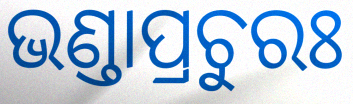
ଭଣ୍ଡାପ୍ରଚୁରଃ